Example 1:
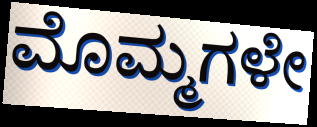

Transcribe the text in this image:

ಮೊಮ್ಮಗಳೇ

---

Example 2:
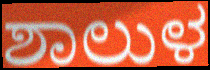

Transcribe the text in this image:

ಶಾಲುಳ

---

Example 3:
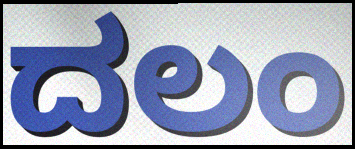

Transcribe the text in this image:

ದಲಂ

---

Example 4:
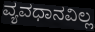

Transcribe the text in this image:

ವ್ಯವಧಾನವಿಲ್ಲ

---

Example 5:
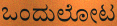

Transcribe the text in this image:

ಒಂದುಲೋಟ